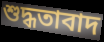
শুদ্ধতাবাদ